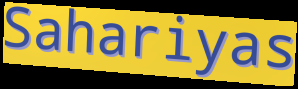
Sahariyas